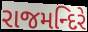
રાજમન્દિરે